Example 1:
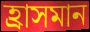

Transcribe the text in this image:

হ্ৰাসমান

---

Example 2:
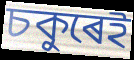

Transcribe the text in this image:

চকুৰেই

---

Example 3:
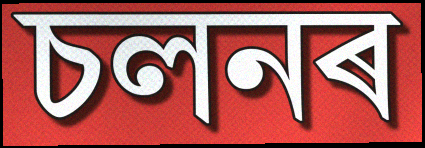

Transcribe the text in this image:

চলনৰ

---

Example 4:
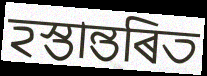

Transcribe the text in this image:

হস্তান্তৰিত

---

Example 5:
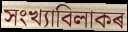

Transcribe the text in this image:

সংখ্যাবিলাকৰ